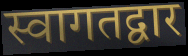
स्वागतद्वार